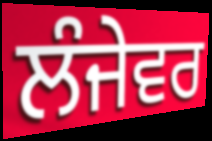
ਲੰਜੇਵਰ